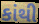
કાંથી